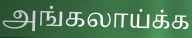
அங்கலாய்க்க